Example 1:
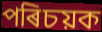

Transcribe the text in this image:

পৰিচয়ক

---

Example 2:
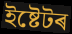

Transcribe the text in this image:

ইষ্টেটৰ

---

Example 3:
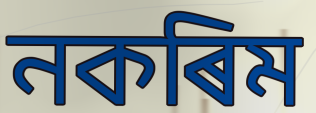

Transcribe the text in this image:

নকৰিম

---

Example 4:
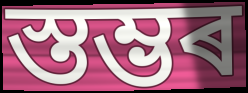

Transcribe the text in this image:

স্তম্ভৰ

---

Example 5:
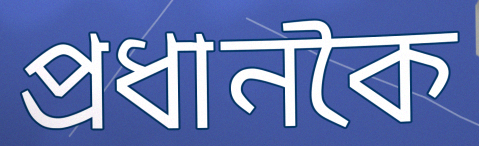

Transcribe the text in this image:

প্ৰধানকৈ